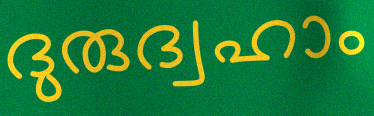
ദുരുദ്വഹാം